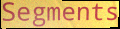
Segments